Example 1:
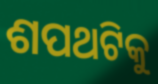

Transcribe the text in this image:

ଶପଥଟିକୁ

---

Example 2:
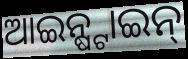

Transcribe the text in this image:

ଆଇନ୍ଷ୍ଟାଇନ୍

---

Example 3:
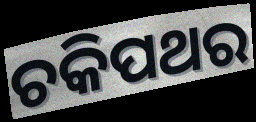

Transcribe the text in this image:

ଚକିପଥର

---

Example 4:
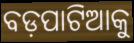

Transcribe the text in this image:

ବଡ଼ପାଟିଆକୁ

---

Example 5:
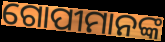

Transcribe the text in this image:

ଗୋପୀମାନଙ୍କ